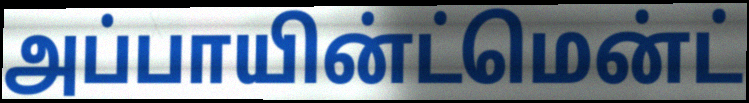
அப்பாயின்ட்மென்ட்